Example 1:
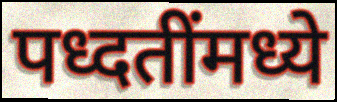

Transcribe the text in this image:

पध्दतींमध्ये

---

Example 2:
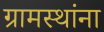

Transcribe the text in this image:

ग्रामस्थांना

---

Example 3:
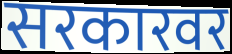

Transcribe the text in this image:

सरकारवर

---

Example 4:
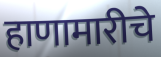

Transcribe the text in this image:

हाणामारीचे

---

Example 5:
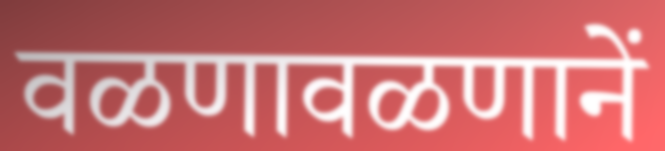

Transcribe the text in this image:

वळणावळणानें